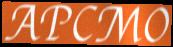
APCMO